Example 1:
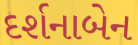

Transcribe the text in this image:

દર્શનાબેન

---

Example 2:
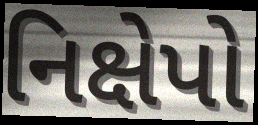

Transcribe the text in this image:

નિક્ષેપો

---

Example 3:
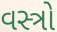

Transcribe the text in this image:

વસ્ત્રો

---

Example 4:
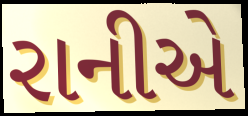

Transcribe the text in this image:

રાનીએ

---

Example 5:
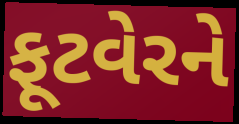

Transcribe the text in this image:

ફૂટવેરને